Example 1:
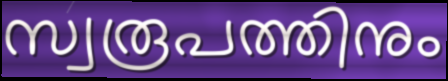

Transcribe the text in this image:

സ്വരൂപത്തിനും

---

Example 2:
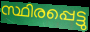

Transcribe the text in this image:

സ്ഥിരപ്പെട്ടു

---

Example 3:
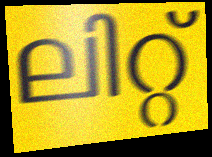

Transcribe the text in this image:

ലിറ്റ്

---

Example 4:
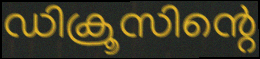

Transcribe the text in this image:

ഡിക്രൂസിന്റെ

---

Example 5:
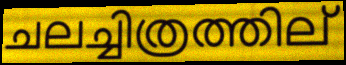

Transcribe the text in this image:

ചലച്ചിത്രത്തില്